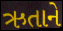
ઋતાને